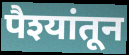
पैश्यांतून